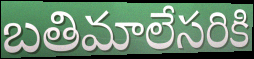
బతిమాలేసరికి